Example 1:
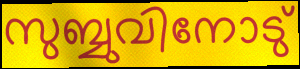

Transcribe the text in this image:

സുബ്ബുവിനോടു്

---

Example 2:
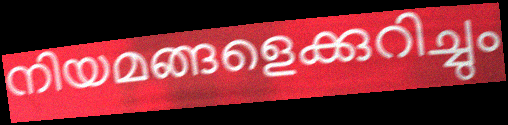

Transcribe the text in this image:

നിയമങ്ങളെക്കുറിച്ചും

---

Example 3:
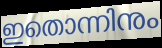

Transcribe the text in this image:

ഇതൊന്നിനും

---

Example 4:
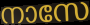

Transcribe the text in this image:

നാസേ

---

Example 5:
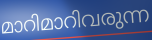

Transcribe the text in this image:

മാറിമാറിവരുന്ന